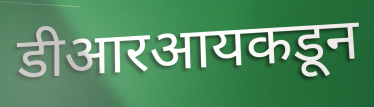
डीआरआयकडून